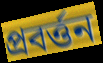
প্ৰবৰ্ত্তন